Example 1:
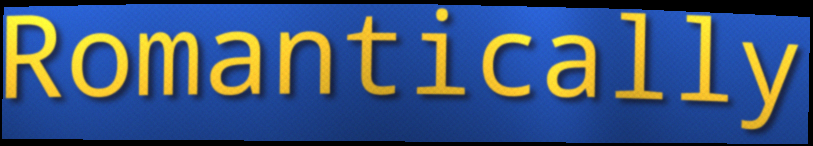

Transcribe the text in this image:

Romantically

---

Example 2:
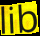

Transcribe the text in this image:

lib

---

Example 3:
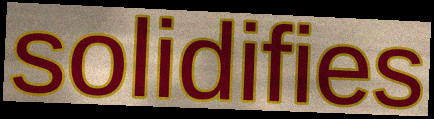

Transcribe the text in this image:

solidifies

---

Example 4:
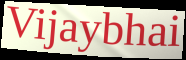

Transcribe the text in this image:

Vijaybhai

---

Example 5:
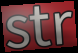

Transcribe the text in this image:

str